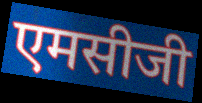
एमसीजी